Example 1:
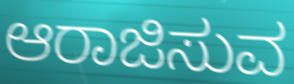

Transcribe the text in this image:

ಆರಾಜಿಸುವ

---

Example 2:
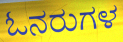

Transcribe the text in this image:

ಓನರುಗಳ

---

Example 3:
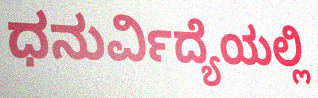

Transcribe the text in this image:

ಧನುರ್ವಿದ್ಯೆಯಲ್ಲಿ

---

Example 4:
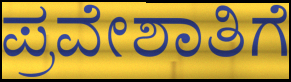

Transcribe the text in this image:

ಪ್ರವೇಶಾತಿಗೆ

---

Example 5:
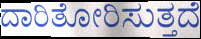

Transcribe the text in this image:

ದಾರಿತೋರಿಸುತ್ತದೆ